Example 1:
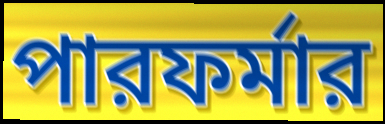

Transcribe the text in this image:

পারফর্মার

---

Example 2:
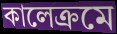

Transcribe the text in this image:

কালেক্রমে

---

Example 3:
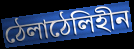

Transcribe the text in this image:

ঠেলাঠেলিহীন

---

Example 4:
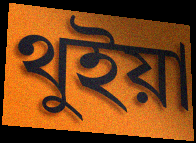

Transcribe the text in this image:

থুইয়া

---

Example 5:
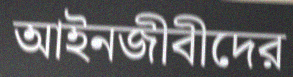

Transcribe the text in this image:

আইনজীবীদের